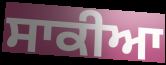
ਸਾਕੀਆ